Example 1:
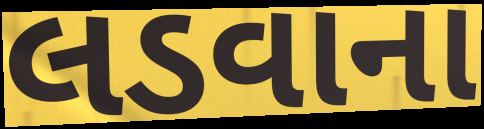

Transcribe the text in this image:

લડવાના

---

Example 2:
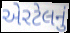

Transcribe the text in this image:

એરટેલનું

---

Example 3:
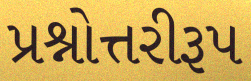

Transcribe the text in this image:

પ્રશ્નોત્તરીરૂપ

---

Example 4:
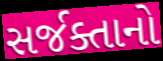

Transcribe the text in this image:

સર્જક્તાનો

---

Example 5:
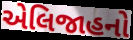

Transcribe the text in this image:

એલિજાહનો